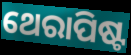
ଥେରାପିଷ୍ଟ